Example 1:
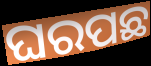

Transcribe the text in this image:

ଘରପଛ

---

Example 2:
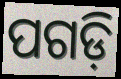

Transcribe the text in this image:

ପଗଡ଼ି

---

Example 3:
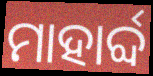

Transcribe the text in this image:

ମାହାର୍ବ୍ଦ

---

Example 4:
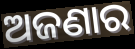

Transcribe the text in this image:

ଅଜଣାର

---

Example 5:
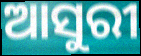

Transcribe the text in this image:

ଆସୁରୀ